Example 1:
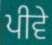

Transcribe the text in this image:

ਪੀਵੇ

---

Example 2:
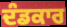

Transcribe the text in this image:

ਦੰਡਕਾਰ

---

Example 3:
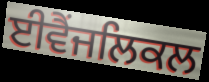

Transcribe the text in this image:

ਈਵੈਂਜਲਿਕਲ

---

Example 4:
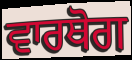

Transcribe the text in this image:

ਵਾਰਥੋਗ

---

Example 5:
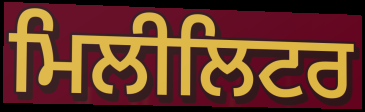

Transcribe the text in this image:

ਮਿਲੀਲਿਟਰ